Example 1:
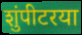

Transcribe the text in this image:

शुंपीटरया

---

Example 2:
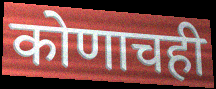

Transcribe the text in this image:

कोणाचही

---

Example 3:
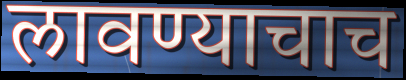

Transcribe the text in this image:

लावण्याचाच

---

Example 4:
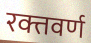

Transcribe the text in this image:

रक्तवर्ण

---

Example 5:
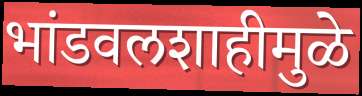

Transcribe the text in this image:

भांडवलशाहीमुळे